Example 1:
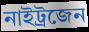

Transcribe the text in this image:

নাইট্ৰজেন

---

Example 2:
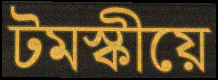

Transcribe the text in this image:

টমস্কীয়ে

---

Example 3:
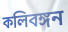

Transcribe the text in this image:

কলিবঙ্গন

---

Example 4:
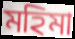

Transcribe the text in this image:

মহিমা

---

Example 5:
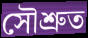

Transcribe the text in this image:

সৌশ্ৰুত